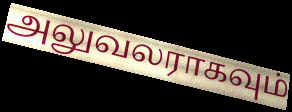
அலுவலராகவும்